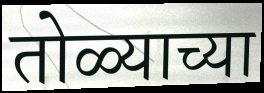
तोळ्याच्या